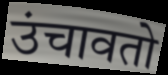
उंचावतो